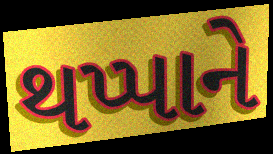
થપ્પાને